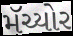
મૅચ્યોર